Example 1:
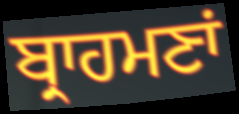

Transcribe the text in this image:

ਬ੍ਰਾਹਮਣਾਂ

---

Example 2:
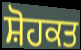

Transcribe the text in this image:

ਸ਼ੋਹਕਤ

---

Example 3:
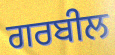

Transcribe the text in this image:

ਗਰਬੀਲ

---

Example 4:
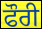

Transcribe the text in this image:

ਫੌਰੀ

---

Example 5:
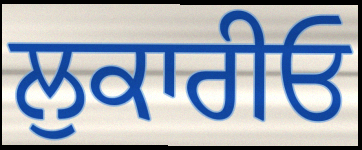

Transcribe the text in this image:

ਲੁਕਾਰੀਓ